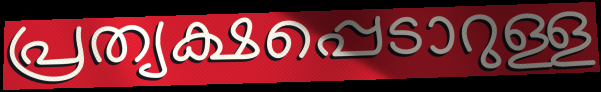
പ്രത്യക്ഷപ്പെടാറുള്ള